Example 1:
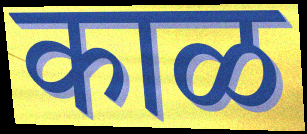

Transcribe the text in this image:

काळ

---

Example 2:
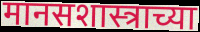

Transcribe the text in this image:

मानसशास्त्राच्या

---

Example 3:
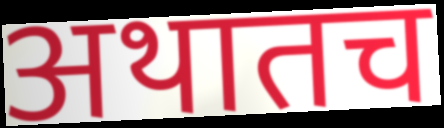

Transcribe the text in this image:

अथातच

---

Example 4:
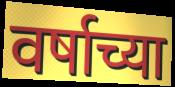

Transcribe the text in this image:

वर्षाच्या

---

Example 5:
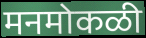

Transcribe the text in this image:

मनमोकळी